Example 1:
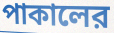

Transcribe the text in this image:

পাকালের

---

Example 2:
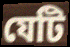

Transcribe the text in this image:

যেটি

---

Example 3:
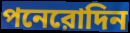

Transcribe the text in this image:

পনেরোদিন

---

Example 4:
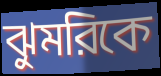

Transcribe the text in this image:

ঝুমরিকে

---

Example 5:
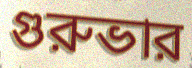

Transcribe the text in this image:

গুরুভার